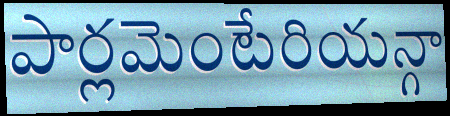
పార్లమెంటేరియన్గా